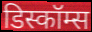
डिस्कॉम्स